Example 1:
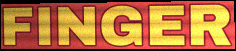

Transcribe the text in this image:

FINGER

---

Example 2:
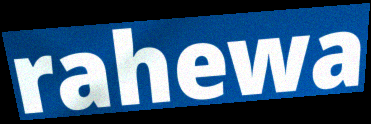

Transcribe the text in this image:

rahewa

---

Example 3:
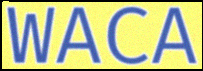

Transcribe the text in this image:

WACA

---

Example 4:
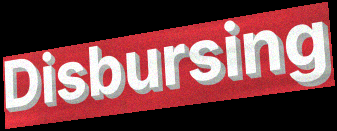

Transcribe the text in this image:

Disbursing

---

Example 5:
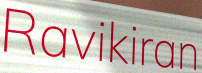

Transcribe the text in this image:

Ravikiran